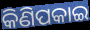
କିଣିପକାଇ